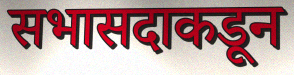
सभासदाकडून